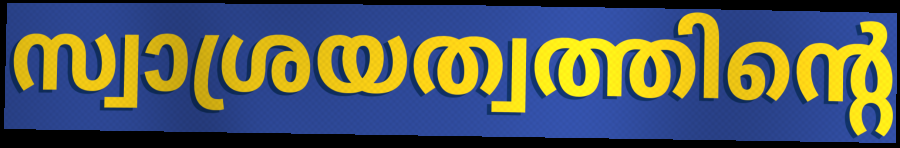
സ്വാശ്രയത്വത്തിന്റെ